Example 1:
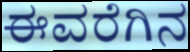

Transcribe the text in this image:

ಈವರೆಗಿನ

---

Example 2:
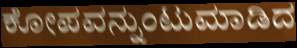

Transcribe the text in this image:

ಕೋಪವನ್ನುಂಟುಮಾಡಿದ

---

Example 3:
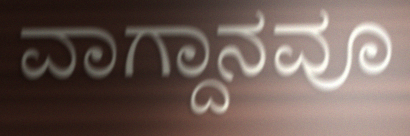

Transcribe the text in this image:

ವಾಗ್ದಾನವೂ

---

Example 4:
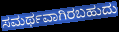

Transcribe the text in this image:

ಸಮರ್ಥವಾಗಿರಬಹುದು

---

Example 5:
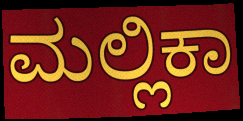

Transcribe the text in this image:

ಮಲ್ಲಿಕಾ